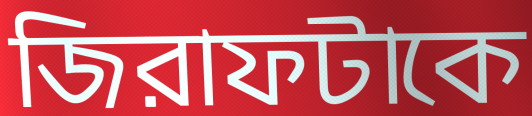
জিরাফটাকে